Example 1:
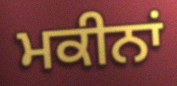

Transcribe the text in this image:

ਮਕੀਨਾਂ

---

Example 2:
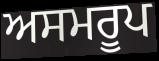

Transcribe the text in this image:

ਅਸਮਰੂਪ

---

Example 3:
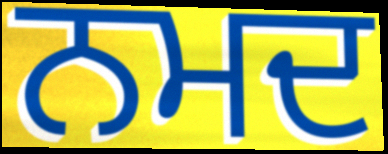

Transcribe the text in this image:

ਨਮਦ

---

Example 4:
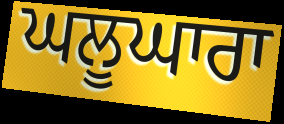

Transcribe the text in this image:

ਘਲੂਘਾਰਾ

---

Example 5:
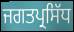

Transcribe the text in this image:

ਜਗਤਪ੍ਰਸਿੱਧ